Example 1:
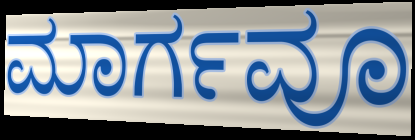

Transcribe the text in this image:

ಮಾರ್ಗವೂ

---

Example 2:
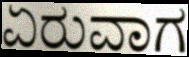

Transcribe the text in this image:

ಏರುವಾಗ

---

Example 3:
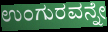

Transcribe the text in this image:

ಉಂಗುರವನ್ನೇ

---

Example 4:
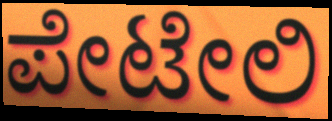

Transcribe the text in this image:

ಪೇಟೇಲಿ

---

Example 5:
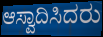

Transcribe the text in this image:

ಆಸ್ವಾದಿಸಿದರು